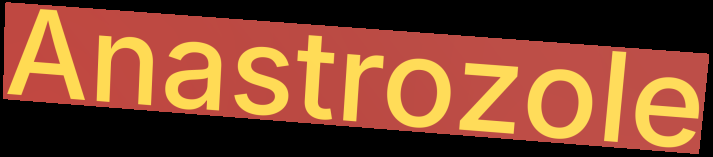
Anastrozole